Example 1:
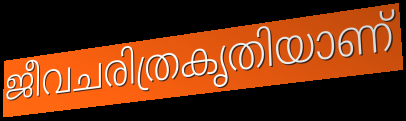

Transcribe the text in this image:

ജീവചരിത്രകൃതിയാണ്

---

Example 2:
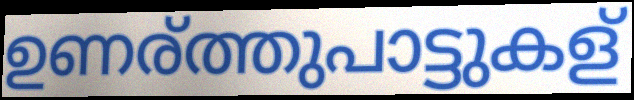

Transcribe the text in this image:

ഉണര്ത്തുപാട്ടുകള്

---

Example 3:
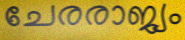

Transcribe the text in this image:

ചേരരാജ്യം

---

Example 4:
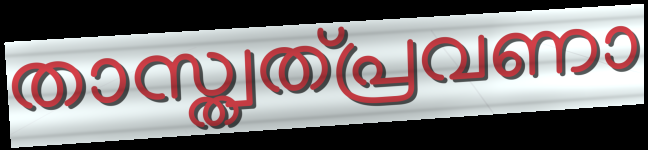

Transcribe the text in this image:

താസ്ത്വത്പ്രവണാ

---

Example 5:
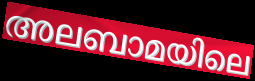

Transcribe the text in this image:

അലബാമയിലെ